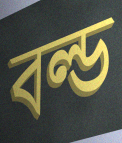
বল্ড